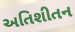
અતિશીતન